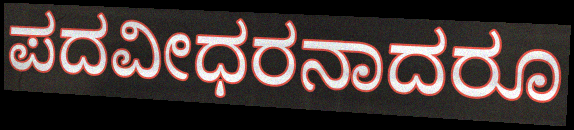
ಪದವೀಧರನಾದರೂ